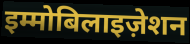
इम्मोबिलाइज़ेशन